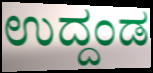
ಉದ್ದಂಡ